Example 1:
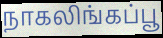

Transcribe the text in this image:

நாகலிங்கப்பூ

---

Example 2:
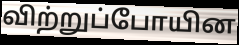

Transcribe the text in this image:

விற்றுப்போயின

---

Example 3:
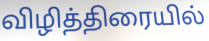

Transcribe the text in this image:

விழித்திரையில்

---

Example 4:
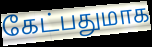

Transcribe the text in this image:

கேட்பதுமாக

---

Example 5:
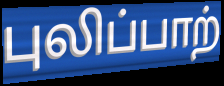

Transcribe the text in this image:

புலிப்பாற்